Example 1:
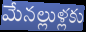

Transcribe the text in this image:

మేనల్లుళ్లకు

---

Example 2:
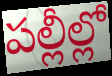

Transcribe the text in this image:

పల్లీల్లో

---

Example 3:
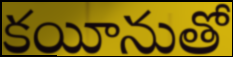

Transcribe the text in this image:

కయీనుతో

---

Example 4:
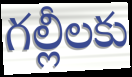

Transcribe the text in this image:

గల్లీలకు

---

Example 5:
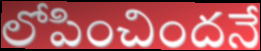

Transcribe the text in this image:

లోపించిందనే